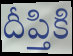
దీప్తికి